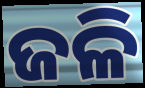
ଜଳି